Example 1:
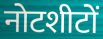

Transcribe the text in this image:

नोटशीटों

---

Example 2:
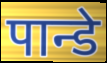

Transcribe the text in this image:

पान्डे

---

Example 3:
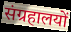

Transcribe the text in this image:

संग्रहालयों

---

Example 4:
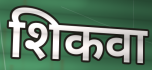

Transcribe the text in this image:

शिकवा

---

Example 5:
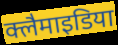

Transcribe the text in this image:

क्लैमाइडिया